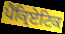
ਪੈਂਕ੍ਰਿਏਟਿਕ